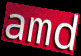
amd